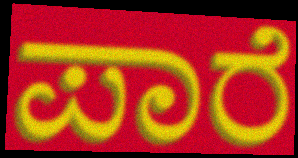
ಪಾರೆ